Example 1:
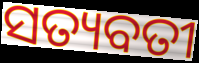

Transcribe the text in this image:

ସତ୍ୟବତୀ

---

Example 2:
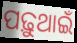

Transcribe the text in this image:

ପଢ଼ୁଥାଇଁ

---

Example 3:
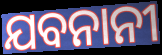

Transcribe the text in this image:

ଯବନାନୀ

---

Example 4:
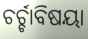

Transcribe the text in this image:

ଚର୍ଚ୍ଚାବିଷୟା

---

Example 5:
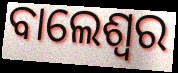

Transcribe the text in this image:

ବାଲେଶ୍ବର